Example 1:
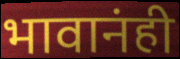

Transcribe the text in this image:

भावानंही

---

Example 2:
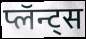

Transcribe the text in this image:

प्लॅन्ट्स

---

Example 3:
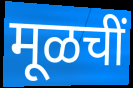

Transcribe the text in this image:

मूळचीं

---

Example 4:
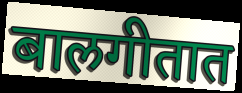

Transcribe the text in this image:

बालगीतात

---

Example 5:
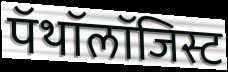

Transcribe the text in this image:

पॅथॉलॉजिस्ट